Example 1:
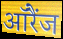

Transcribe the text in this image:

ऑरैंज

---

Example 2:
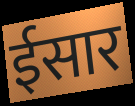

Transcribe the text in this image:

ईसार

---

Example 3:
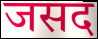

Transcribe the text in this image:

जसद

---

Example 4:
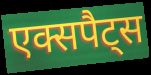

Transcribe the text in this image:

एक्सपैट्स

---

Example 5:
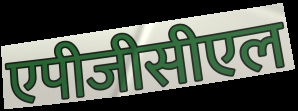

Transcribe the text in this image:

एपीजीसीएल